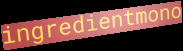
ingredientmono